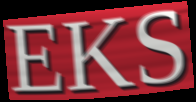
EKS